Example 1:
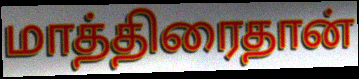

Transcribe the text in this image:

மாத்திரைதான்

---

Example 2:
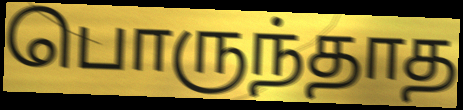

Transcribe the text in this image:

பொருந்தாத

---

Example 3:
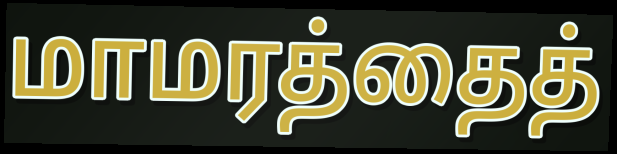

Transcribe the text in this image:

மாமரத்தைத்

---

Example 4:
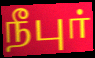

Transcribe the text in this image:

நீபுர்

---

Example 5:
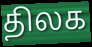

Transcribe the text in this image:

திலக